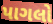
પાગલો